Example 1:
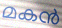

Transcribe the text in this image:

മകൻ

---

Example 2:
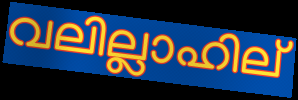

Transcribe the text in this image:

വലില്ലാഹില്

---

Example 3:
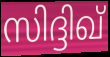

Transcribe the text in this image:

സിദ്ദിഖ്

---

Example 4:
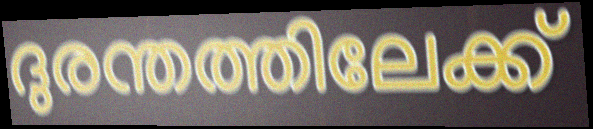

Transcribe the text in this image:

ദുരന്തത്തിലേക്ക്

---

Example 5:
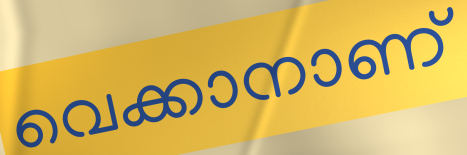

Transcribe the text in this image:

വെക്കാനാണ്